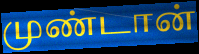
முண்டான்